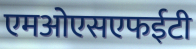
एमओएसएफईटी